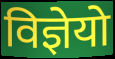
विज्ञेयो